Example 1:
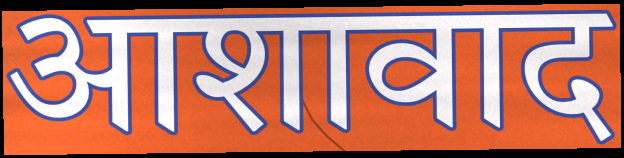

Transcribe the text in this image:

आशावाद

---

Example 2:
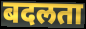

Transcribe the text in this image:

बदलता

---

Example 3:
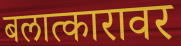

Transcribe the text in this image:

बलात्कारावर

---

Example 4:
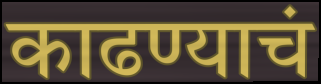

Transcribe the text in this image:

काढण्याचं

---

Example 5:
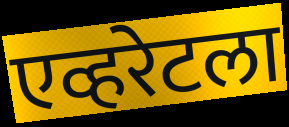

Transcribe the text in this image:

एव्हरेटला